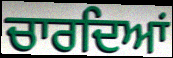
ਚਾਰਦਿਆਂ